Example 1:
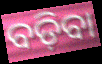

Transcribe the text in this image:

ବଡ଼ିବା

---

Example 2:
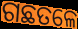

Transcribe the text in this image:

ଗଛତଳେ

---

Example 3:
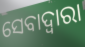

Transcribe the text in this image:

ସେବାଦ୍ବାରା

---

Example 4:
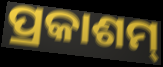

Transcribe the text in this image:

ପ୍ରକାଶମ୍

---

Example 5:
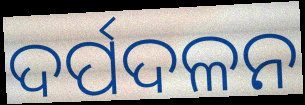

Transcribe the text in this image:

ଦର୍ପଦଳନ